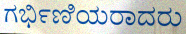
ಗರ್ಭಿಣಿಯರಾದರು